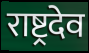
राष्ट्रदेव